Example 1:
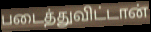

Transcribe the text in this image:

படைத்துவிட்டான்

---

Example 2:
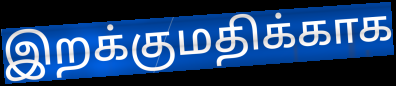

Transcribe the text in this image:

இறக்குமதிக்காக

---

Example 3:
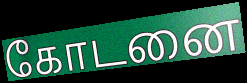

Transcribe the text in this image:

கோடனை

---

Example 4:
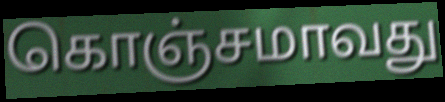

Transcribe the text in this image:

கொஞ்சமாவது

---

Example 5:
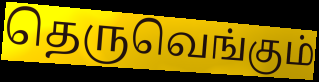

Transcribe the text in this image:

தெருவெங்கும்